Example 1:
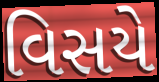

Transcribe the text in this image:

વિસયે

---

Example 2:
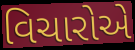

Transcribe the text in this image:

વિચારોએ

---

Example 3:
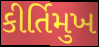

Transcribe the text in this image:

કીર્તિમુખ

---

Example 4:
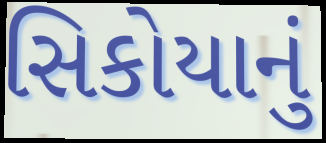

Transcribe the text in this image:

સિકોયાનું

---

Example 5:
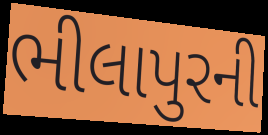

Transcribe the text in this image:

ભીલાપુરની